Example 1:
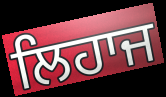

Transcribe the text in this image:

ਲਿਹਾਜ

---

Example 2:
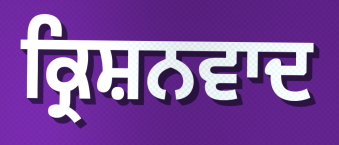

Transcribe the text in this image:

ਕ੍ਰਿਸ਼ਨਵਾਦ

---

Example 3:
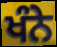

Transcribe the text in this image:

ਖੰਨੇ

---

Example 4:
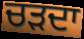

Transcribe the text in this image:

ਚੜਦਾ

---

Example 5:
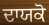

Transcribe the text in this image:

ਦਾਯਕੋ